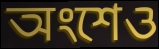
অংশেও